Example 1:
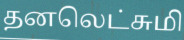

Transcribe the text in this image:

தனலெட்சுமி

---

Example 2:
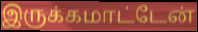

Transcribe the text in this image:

இருக்கமாட்டேன்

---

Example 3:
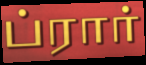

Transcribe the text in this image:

ப்ரார்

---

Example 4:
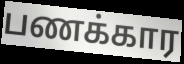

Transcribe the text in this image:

பணக்கார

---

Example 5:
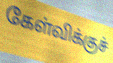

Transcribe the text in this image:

கேள்விக்குச்